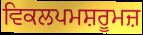
ਵਿਕਲਪਮਸ਼ਰੂਮਜ਼